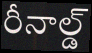
రీనాల్డ్